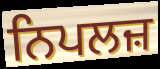
ਨਿਪਲਜ਼